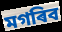
মগৰিব